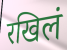
रखिलं